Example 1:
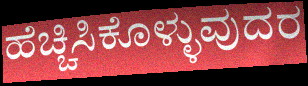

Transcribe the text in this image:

ಹೆಚ್ಚಿಸಿಕೊಳ್ಳುವುದರ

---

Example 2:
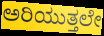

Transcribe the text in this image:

ಅರಿಯುತ್ತಲೇ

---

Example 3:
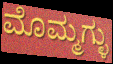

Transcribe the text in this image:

ಮೊಮ್ಮಗ್ಳು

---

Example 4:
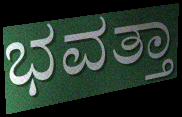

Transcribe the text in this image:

ಭವತ್ತಾ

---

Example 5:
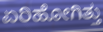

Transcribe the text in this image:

ಏರಿಹೋಗಿತ್ತು